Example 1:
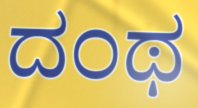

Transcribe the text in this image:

ದಂಥ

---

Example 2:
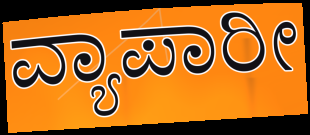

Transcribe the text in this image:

ವ್ಯಾಪಾರೀ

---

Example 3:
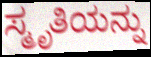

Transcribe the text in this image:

ಸ್ಮೃತಿಯನ್ನು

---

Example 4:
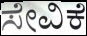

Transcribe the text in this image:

ಸೇವಿಕೆ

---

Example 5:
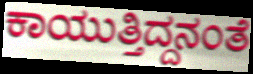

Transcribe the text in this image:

ಕಾಯುತ್ತಿದ್ದನಂತೆ